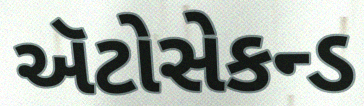
ઍટોસેકન્ડ